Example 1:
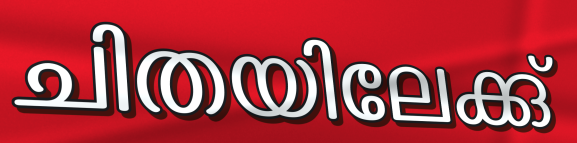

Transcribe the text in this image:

ചിതയിലേക്കു്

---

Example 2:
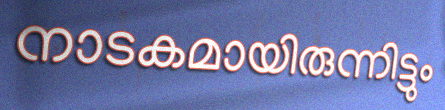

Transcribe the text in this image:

നാടകമായിരുന്നിട്ടും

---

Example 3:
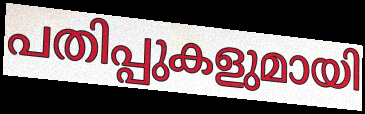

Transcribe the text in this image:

പതിപ്പുകളുമായി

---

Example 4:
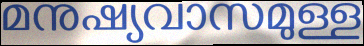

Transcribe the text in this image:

മനുഷ്യവാസമുള്ള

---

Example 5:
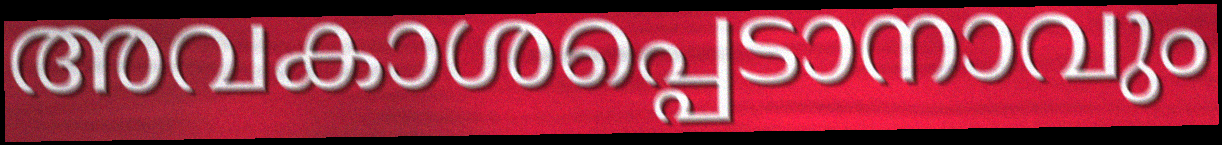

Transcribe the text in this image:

അവകാശപ്പെടാനാവും